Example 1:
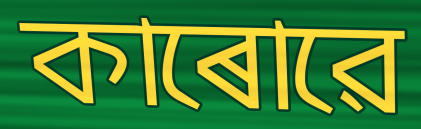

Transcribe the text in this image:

কাৰোৱে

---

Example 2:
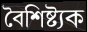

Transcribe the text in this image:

বৈশিষ্ট্যক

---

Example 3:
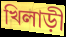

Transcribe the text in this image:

খিলাড়ী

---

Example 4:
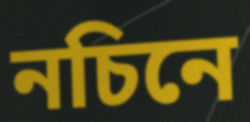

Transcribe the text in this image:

নচিনে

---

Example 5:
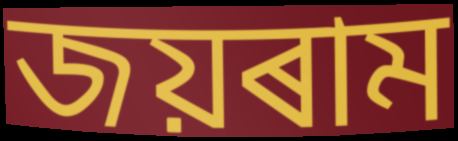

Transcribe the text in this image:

জয়ৰাম